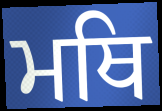
ਮਥਿ